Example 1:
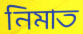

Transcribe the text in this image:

নিমাত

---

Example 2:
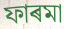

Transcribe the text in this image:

ফাৰমা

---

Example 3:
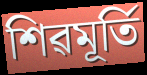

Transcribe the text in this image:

শিৱমূৰ্তি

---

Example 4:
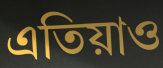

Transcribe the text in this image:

এতিয়াও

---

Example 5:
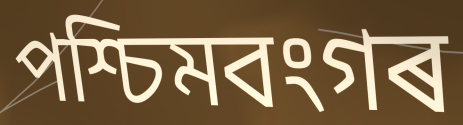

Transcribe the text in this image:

পশ্চিমবংগৰ